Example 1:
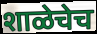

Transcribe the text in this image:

शाळेचेच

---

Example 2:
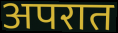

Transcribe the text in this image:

अपरात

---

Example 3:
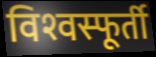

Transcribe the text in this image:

विश्वस्फूर्ती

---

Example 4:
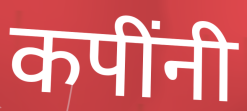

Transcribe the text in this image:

कपींनी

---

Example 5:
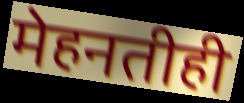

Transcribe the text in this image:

मेहनतीही